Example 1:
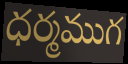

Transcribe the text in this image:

ధర్మముగ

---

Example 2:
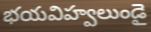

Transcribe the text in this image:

భయవిహ్వలుండై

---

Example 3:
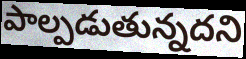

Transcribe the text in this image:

పాల్పడుతున్నదని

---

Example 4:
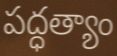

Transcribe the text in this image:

పద్ధత్యాం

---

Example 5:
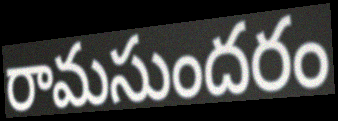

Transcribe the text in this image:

రామసుందరం